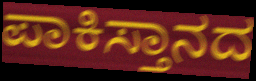
ಪಾಕಿಸ್ತಾನದ